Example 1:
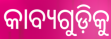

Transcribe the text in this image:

କାବ୍ୟଗୁଡ଼ିକୁ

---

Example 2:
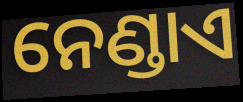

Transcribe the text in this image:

ନେଣ୍ଡାଏ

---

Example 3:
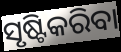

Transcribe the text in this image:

ସୃଷ୍ଟିକରିବା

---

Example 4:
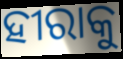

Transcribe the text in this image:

ହୀରାକୁ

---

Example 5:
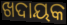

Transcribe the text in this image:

ଖଦାୟକ